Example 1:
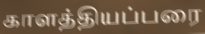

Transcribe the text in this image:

காளத்தியப்பரை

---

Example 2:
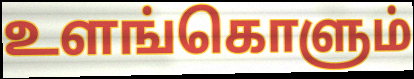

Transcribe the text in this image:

உளங்கொளும்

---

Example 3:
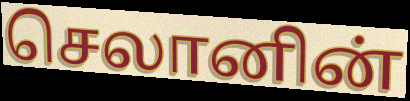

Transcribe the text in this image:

செலானின்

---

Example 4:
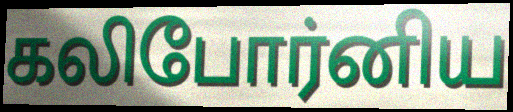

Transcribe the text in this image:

கலிபோர்னிய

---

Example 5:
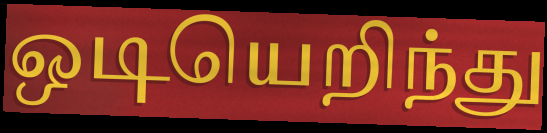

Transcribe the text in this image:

ஒடியெறிந்து